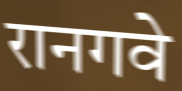
रानगवे